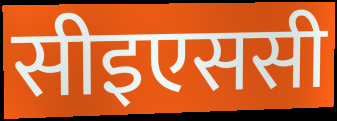
सीइएससी